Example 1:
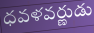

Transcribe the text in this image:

ధవళవర్ణుడు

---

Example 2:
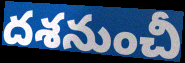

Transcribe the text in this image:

దశనుంచీ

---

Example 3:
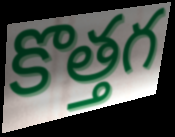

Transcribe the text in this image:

కొత్తగ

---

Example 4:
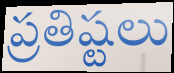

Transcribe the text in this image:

ప్రతిష్టలు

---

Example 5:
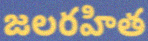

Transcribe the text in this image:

జలరహిత